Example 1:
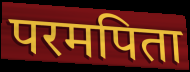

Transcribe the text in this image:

परमपिता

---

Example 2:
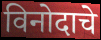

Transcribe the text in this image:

विनोदाचे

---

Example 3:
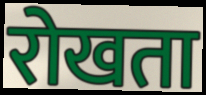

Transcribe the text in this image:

रोखता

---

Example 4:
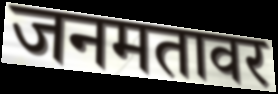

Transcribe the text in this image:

जनमतावर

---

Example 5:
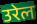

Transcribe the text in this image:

उरेल